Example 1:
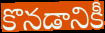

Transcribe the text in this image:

కొనడానికీ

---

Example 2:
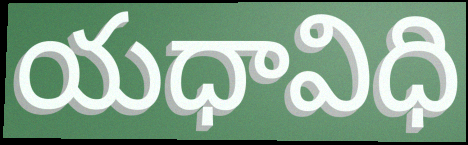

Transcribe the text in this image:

యధావిధి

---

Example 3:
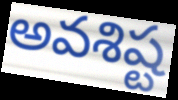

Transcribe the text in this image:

అవశిష్ట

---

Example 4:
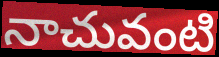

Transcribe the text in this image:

నాచువంటి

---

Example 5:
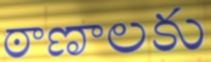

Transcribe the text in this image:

ఠాణాలకు